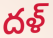
దళ్